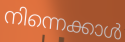
നിന്നെക്കാൾ